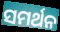
ସମର୍ଥନ